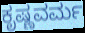
ಕೃಷ್ಣವರ್ಮ